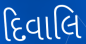
દિવાલિ